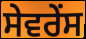
ਸੇਵਰੇਂਸ